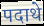
पदाथे